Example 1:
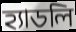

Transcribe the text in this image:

হ্যাডলি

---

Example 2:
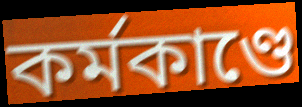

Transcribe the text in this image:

কর্মকাণ্ডে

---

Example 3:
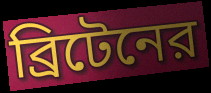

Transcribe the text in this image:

ব্রিটেনের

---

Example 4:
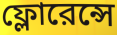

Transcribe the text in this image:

ফ্লোরেন্সে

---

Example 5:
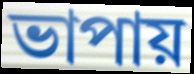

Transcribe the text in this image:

ভাপায়